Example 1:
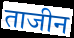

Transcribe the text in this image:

ताजीन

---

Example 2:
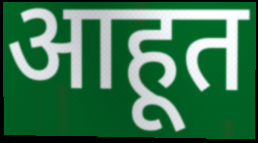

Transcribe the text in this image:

आहूत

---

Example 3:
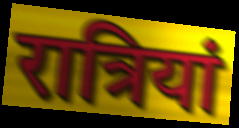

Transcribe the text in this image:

रात्रियां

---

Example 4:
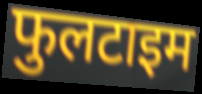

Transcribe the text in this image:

फुलटाइम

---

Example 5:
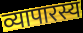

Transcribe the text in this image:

व्यापारस्य